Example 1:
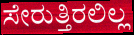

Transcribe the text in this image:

ಸೇರುತ್ತಿರಲಿಲ್ಲ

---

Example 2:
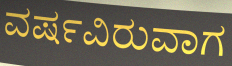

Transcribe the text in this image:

ವರ್ಷವಿರುವಾಗ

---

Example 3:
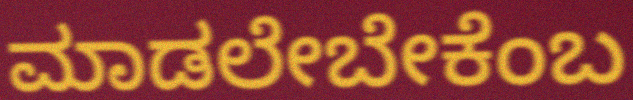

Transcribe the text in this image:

ಮಾಡಲೇಬೇಕೆಂಬ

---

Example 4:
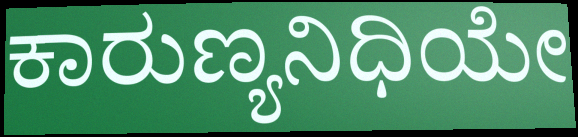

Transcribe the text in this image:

ಕಾರುಣ್ಯನಿಧಿಯೇ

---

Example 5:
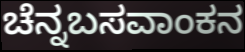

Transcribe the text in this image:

ಚೆನ್ನಬಸವಾಂಕನ